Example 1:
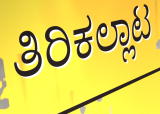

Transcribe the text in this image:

ತಿರಿಕಲ್ಲಾಟ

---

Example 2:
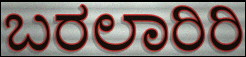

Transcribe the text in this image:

ಬರಲಾರಿರಿ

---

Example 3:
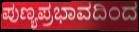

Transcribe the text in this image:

ಪುಣ್ಯಪ್ರಭಾವದಿಂದ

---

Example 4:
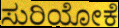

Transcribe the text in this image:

ಸುರಿಯೋಕೆ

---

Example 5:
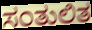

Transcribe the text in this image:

ಸಂತುಲಿತ